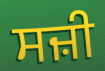
ਸਜ਼ੀ